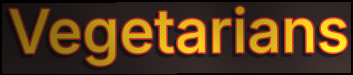
Vegetarians